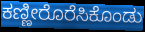
ಕಣ್ಣೀರೊರೆಸಿಕೊಂಡು